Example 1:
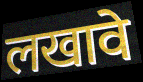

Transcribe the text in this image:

लखावे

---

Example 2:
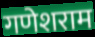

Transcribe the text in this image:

गणेशराम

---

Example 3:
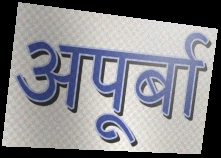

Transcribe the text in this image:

अपूर्बा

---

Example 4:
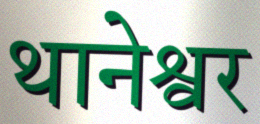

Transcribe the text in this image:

थानेश्वर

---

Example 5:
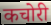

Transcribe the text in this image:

कचोरी